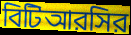
বিটিআরসির